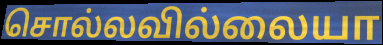
சொல்லவில்லையா